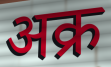
अक्र